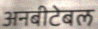
अनबीटेबल